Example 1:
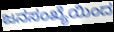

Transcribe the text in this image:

ಜನಸಂಖ್ಯೆಯಿಂದ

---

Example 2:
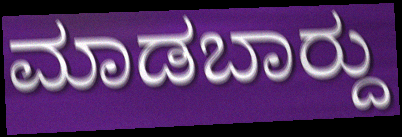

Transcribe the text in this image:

ಮಾಡಬಾರ್‍ದು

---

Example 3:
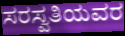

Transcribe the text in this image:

ಸರಸ್ವತಿಯವರ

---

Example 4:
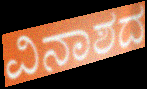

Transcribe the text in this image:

ವಿನಾಶದ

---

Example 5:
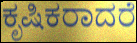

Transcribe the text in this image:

ಕೃಷಿಕರಾದರೆ